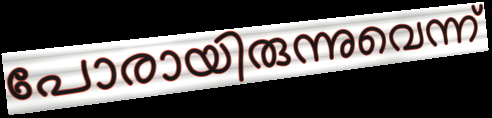
പോരായിരുന്നുവെന്ന്